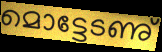
മൊട്ടേടണു്